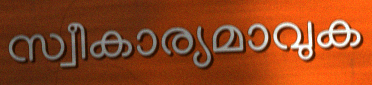
സ്വീകാര്യമാവുക